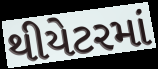
થીયેટરમાં